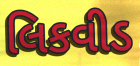
લિકવીડ